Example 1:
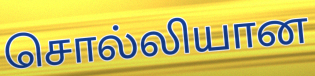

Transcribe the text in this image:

சொல்லியான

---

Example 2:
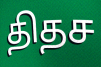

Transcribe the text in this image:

திதச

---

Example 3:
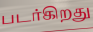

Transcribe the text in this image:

படர்கிறது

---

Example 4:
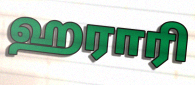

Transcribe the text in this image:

ஹராரி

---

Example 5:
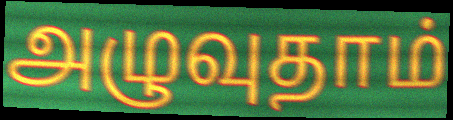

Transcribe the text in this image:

அழுவுதாம்